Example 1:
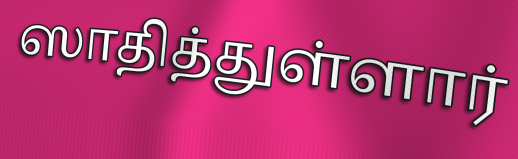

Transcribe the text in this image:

ஸாதித்துள்ளார்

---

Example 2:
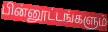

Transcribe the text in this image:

பின்னூட்டங்களும்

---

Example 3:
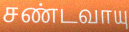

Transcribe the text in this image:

சண்டவாயு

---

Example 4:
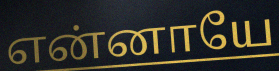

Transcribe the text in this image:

என்னாயே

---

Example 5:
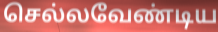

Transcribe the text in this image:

செல்லவேண்டிய